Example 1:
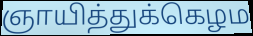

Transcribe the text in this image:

ஞாயித்துக்கெழம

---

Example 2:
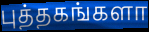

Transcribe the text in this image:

புத்தகங்களா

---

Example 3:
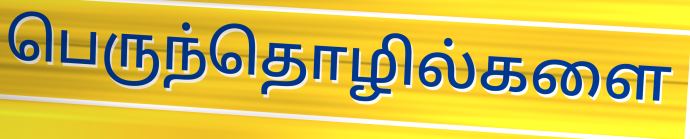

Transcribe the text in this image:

பெருந்தொழில்களை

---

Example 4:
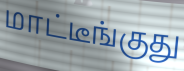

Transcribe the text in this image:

மாட்டீங்குது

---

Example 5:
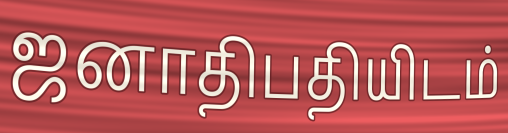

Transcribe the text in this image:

ஜனாதிபதியிடம்